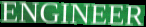
ENGINEER